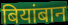
बियांबान